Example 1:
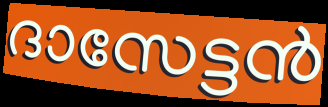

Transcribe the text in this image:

ദാസേട്ടൻ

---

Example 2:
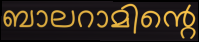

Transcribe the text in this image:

ബാലറാമിന്റെ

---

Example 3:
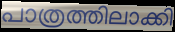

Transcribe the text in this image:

പാത്രത്തിലാക്കി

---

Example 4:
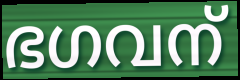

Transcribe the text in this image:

ഭഗവന്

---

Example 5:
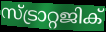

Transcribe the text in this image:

സ്ട്രാറ്റജിക്